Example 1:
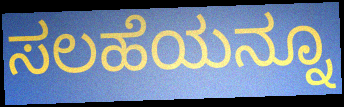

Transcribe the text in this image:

ಸಲಹೆಯನ್ನೂ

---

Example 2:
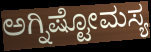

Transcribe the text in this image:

ಅಗ್ನಿಷ್ಟೋಮಸ್ಯ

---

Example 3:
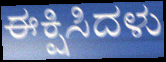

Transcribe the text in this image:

ಈಕ್ಷಿಸಿದಳು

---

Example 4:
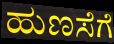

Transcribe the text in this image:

ಹುಣಸೆಗೆ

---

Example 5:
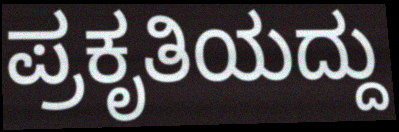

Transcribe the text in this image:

ಪ್ರಕೃತಿಯದ್ದು